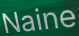
Naine